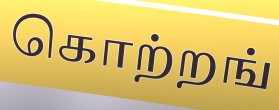
கொற்றங்